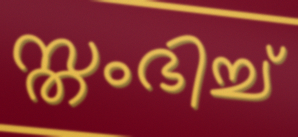
സ്തംഭിച്ച്